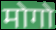
मोगो